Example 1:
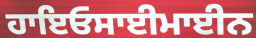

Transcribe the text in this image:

ਹਾਇਓਸਾਈਮਾਈਨ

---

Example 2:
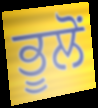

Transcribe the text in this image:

ਭੂਲੋਂ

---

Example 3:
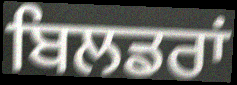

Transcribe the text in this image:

ਬਿਲਡਰਾਂ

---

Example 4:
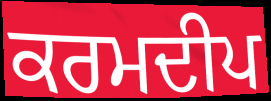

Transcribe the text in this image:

ਕਰਮਦੀਪ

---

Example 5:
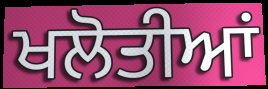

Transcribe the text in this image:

ਖਲੋਤੀਆਂ